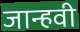
जान्‍हवी